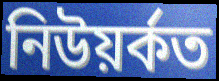
নিউয়ৰ্কত